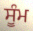
ਸੂੰਮ